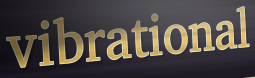
vibrational